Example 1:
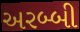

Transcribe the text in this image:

અરબ્બી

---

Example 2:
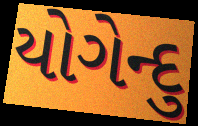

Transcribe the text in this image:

યોગેન્દુ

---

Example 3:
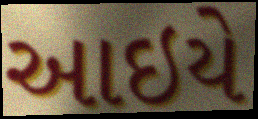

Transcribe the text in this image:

આઇયે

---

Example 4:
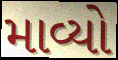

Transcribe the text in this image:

માવ્યો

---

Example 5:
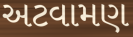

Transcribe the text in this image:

અટવામણ